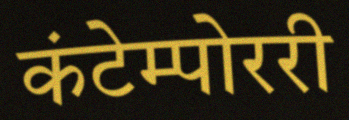
कंटेम्पोररी